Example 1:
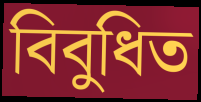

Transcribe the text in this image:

বিবুধিত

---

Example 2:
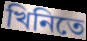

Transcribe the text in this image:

খিনিতে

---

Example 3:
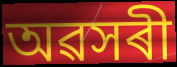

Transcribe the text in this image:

অৱসৰী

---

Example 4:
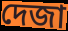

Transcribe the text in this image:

দেজা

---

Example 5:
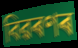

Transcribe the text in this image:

বিৱৰণৰ